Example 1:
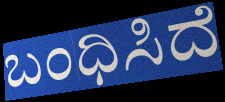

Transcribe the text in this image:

ಬಂಧಿಸಿದೆ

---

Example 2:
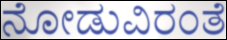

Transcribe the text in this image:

ನೋಡುವಿರಂತೆ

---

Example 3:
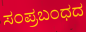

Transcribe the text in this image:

ಸಂಪ್ರಬಂಧದ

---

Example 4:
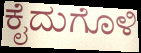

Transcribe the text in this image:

ಕೈದುಗೊಳಿ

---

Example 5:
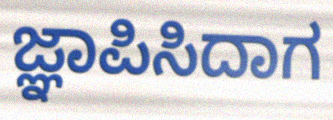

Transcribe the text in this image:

ಜ್ಞಾಪಿಸಿದಾಗ